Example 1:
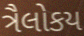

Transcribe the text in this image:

ત્રૈલોકય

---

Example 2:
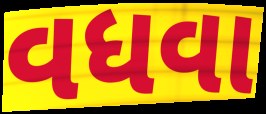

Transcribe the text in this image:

વધવા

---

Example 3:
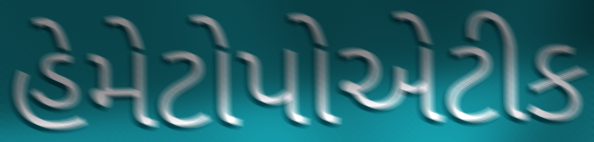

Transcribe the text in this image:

હેમેટોપોએટીક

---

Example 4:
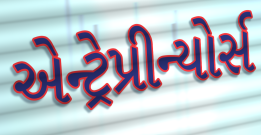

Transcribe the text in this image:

એન્ટ્રેપ્રીન્યોર્સ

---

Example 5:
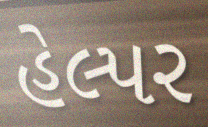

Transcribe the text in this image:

હેલ્પર